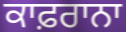
ਕਾਫ਼ਰਾਨਾ